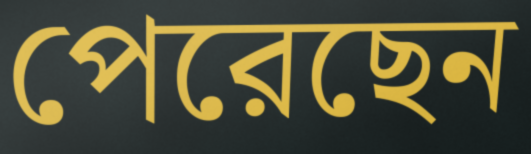
পেরেছেন